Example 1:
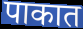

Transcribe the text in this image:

पाकात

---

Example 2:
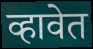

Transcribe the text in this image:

व्हावेत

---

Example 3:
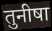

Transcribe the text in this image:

तुनीषा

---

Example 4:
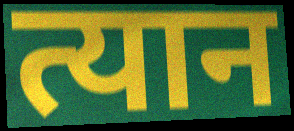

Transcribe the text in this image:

त्यान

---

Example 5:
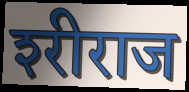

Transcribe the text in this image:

श्रीराज